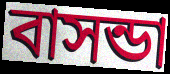
বাসন্ডা